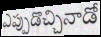
ఎప్పుడొచ్చినాడో